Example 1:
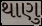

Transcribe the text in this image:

થાણુ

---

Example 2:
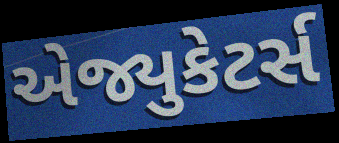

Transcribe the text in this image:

એજ્યુકેટર્સ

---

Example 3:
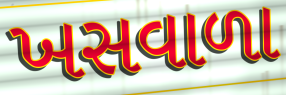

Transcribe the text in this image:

ખસવાળા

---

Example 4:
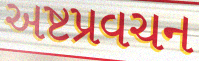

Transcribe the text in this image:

અષ્ટપ્રવચન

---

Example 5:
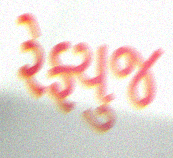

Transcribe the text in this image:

રેફ્યુજ